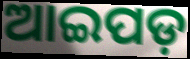
ଆଇପଡ଼